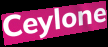
Ceylone